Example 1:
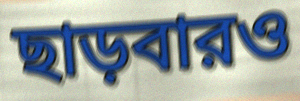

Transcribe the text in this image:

ছাড়বারও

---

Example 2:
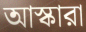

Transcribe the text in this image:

আস্কারা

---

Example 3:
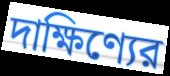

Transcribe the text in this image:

দাক্ষিণ্যের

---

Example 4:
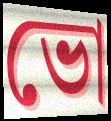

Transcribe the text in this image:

ভো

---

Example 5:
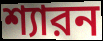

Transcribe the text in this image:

শ্যারন